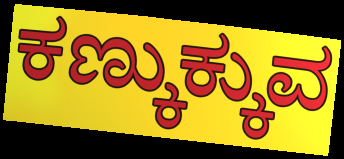
ಕಣ್ಕುಕ್ಕುವ